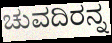
ಚುವದಿರನ್ನ